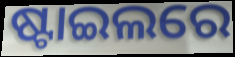
ଷ୍ଟାଇଲରେ